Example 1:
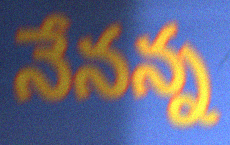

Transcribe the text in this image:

నేనన్న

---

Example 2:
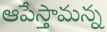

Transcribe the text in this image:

ఆపేస్తామన్న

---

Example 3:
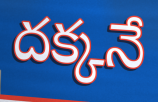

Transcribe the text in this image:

దక్కనే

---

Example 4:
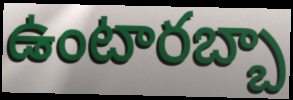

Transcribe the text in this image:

ఉంటారబ్బా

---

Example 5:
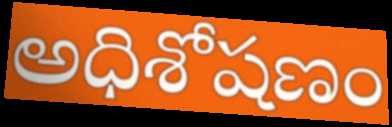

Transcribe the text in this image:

అధిశోషణం